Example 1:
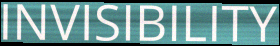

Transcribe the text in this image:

INVISIBILITY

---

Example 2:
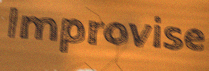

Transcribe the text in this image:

Improvise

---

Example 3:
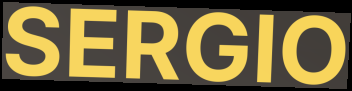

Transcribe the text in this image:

SERGIO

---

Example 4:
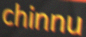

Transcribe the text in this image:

chinnu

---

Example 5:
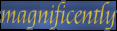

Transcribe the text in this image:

magnificently